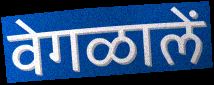
वेगळालें